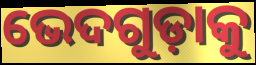
ଭେଦଗୁଡ଼ାକୁ